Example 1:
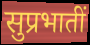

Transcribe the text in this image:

सुप्रभातीं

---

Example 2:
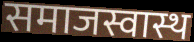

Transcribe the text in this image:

समाजस्वास्थ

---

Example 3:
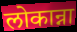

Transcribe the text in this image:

लोकान्ना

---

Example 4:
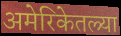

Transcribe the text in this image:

अमेरिकेतल्या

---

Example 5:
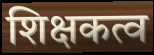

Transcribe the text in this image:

शिक्षकत्व